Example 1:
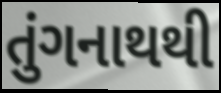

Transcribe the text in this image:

તુંગનાથથી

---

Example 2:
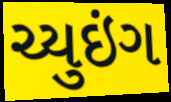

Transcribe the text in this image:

ચ્યુઇંગ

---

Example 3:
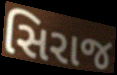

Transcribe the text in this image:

સિરાજ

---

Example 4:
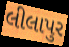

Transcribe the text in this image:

લીલાપુર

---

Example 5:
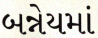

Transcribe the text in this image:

બન્નેયમાં